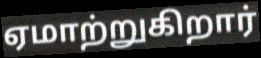
ஏமாற்றுகிறார்